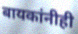
बायकांनीही